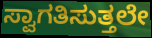
ಸ್ವಾಗತಿಸುತ್ತಲೇ